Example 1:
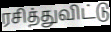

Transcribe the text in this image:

ரசித்துவிட்டு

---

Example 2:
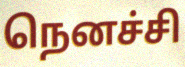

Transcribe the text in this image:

நெனச்சி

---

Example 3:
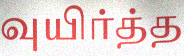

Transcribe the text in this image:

வுயிர்த்த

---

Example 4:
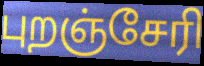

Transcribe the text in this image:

புறஞ்சேரி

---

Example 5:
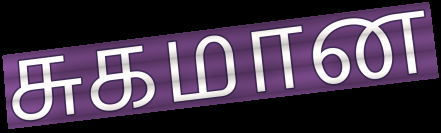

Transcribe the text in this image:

சுகமான